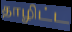
தாழிட்ட